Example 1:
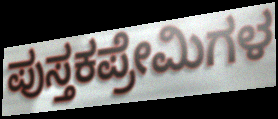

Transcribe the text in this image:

ಪುಸ್ತಕಪ್ರೇಮಿಗಳ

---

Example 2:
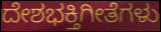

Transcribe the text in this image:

ದೇಶಭಕ್ತಿಗೀತೆಗಳು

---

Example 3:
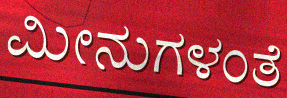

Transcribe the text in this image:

ಮೀನುಗಳಂತೆ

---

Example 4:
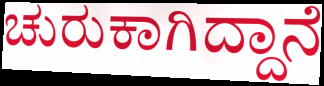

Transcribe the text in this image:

ಚುರುಕಾಗಿದ್ದಾನೆ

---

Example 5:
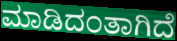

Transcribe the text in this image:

ಮಾಡಿದಂತಾಗಿದೆ